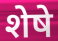
शेषे